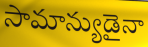
సామాన్యుడైనా